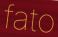
fato